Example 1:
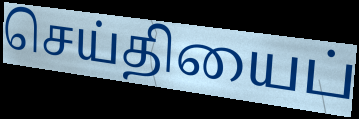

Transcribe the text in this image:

செய்தியைப்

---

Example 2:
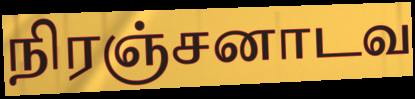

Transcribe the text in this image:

நிரஞ்சனாடவ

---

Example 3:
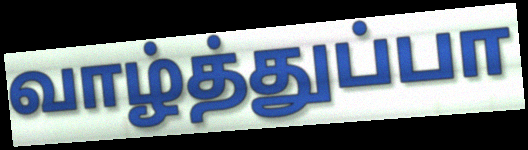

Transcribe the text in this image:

வாழ்த்துப்பா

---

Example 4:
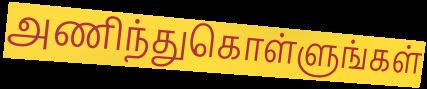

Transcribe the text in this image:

அணிந்துகொள்ளுங்கள்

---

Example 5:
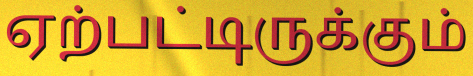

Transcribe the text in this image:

ஏற்பட்டிருக்கும்